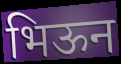
भिऊन